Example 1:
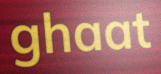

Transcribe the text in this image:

ghaat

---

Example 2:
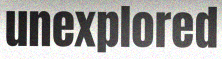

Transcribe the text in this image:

unexplored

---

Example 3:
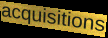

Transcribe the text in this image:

acquisitions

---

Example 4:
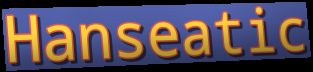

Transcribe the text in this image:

Hanseatic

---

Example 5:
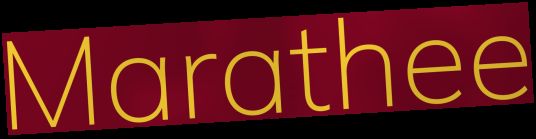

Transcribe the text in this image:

Marathee